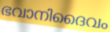
ഭവാനിദൈവം